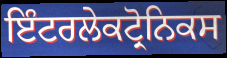
ਇੰਟਰਲੇਕਟ੍ਰੋਨਿਕਸ